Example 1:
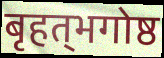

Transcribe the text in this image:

बृहत्‌भगोष्ठ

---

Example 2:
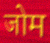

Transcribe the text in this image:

जोम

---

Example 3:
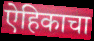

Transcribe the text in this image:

ऐहिकाचा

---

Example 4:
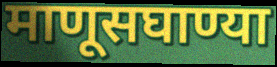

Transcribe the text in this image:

माणूसघाण्या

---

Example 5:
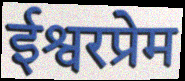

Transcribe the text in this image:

ईश्वरप्रेम